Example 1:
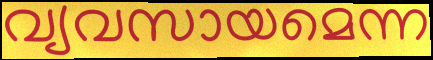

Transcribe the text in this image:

വ്യവസായമെന്ന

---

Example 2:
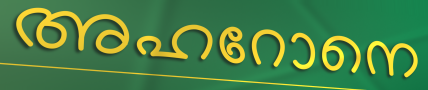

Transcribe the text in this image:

അഹറോനെ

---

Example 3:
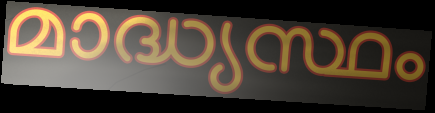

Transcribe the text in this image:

മാദ്ധ്യസ്ഥം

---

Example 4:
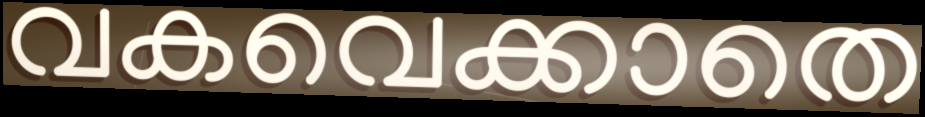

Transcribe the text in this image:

വകവെക്കാതെ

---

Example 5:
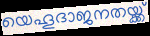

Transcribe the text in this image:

യെഹൂദാജനതയ്ക്ക്